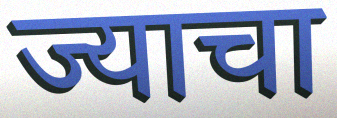
ज्याचा